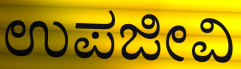
ಉಪಜೀವಿ